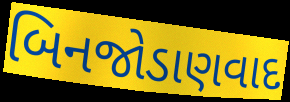
બિનજોડાણવાદ